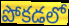
పోకడలో